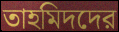
তাহমিদদের